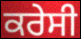
ਕਰੇਸੀ